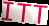
ITT